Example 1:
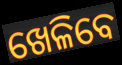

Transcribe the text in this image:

ଖେଳିବେ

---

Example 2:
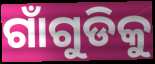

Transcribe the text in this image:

ଗାଁଗୁଡିକୁ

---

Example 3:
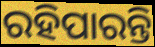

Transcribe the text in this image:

ରହିପାରନ୍ତି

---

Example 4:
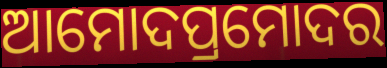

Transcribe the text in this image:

ଆମୋଦପ୍ରମୋଦର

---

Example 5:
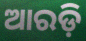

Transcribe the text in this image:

ଆରଡ଼ି